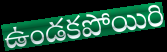
ఉండకపోయిరి